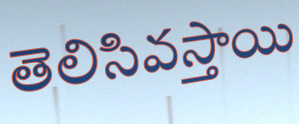
తెలిసివస్తాయి